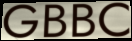
GBBC